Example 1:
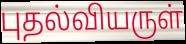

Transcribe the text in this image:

புதல்வியருள்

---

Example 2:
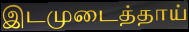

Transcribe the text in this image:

இடமுடைத்தாய்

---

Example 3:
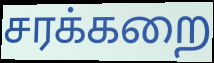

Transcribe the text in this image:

சரக்கறை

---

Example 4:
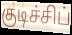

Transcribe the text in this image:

குடிச்சிப்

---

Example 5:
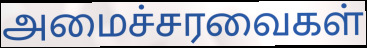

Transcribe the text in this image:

அமைச்சரவைகள்